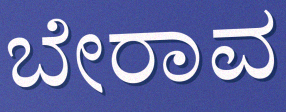
ಬೇರಾವ